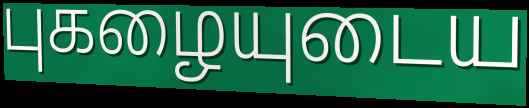
புகழையுடைய